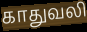
காதுவலி